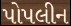
પોપલીન